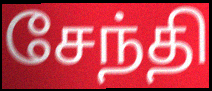
சேந்தி